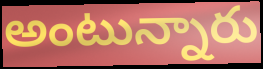
అంటున్నారు